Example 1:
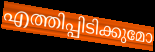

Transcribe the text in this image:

എത്തിപ്പിടിക്കുമോ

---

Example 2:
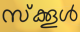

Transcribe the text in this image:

സ്ക്കൂൾ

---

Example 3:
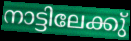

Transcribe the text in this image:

നാട്ടിലേക്കു്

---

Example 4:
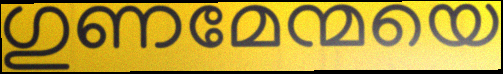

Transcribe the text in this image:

ഗുണമേന്മയെ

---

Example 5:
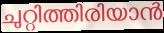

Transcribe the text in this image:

ചുറ്റിത്തിരിയാൻ